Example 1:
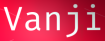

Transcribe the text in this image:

Vanji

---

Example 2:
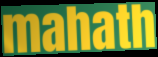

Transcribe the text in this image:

mahath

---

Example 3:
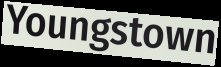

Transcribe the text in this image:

Youngstown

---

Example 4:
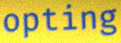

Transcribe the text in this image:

opting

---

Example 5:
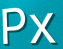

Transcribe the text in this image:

Px